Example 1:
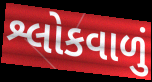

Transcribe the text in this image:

શ્લોકવાળું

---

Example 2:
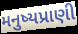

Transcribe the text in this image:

મનુષ્યપ્રાણી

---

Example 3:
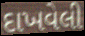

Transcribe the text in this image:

દાખવેલી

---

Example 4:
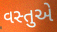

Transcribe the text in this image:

વસ્તુએ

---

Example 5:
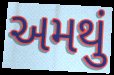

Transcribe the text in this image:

અમથું